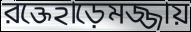
রক্তেহাড়েমজ্জায়